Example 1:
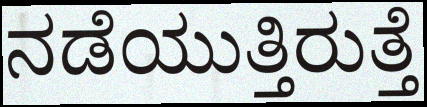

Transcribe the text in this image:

ನಡೆಯುತ್ತಿರುತ್ತೆ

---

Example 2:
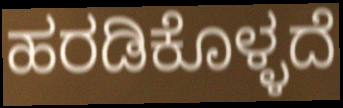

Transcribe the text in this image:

ಹರಡಿಕೊಳ್ಳದೆ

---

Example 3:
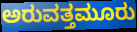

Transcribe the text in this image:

ಅರುವತ್ತಮೂರು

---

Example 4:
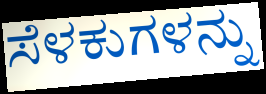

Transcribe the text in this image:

ಸೆಳಕುಗಳನ್ನು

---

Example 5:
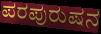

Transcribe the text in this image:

ಪರಪುರುಷನ